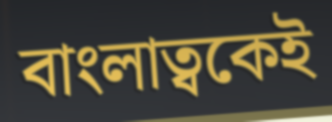
বাংলাত্বকেই